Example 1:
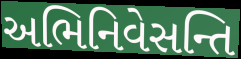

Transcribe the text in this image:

અભિનિવેસન્તિ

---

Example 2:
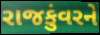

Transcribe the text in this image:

રાજકુંવરને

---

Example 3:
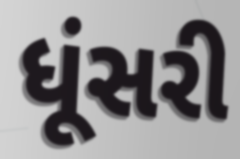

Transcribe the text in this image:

ધૂંસરી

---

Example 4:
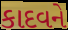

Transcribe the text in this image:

કાદવને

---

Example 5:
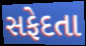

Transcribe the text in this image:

સફેદતા